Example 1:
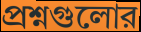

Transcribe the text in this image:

প্রশ্নগুলোর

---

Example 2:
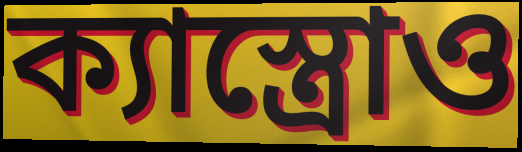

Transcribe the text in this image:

ক্যাস্ত্রোও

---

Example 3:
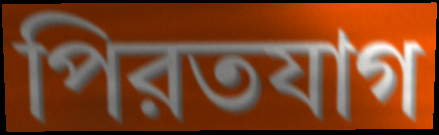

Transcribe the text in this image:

পিরতযাগ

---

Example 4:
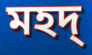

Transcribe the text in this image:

মহদ্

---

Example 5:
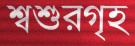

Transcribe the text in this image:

শ্বশুরগৃহ